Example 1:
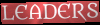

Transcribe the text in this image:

LEADERS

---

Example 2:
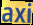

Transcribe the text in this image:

axi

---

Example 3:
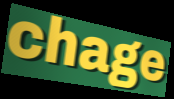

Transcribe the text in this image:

chage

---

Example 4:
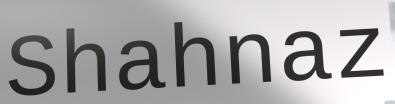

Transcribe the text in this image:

Shahnaz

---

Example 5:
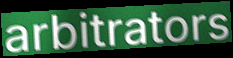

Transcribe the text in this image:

arbitrators